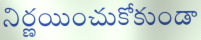
నిర్ణయించుకోకుండా